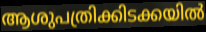
ആശുപത്രിക്കിടക്കയിൽ